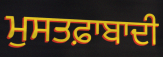
ਮੁਸਤਫ਼ਾਬਾਦੀ